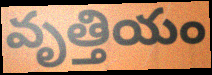
వృత్తియం